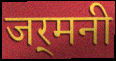
जर्मनी